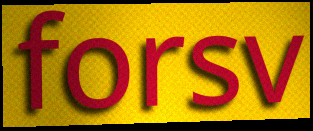
forsv